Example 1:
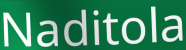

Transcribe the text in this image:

Naditola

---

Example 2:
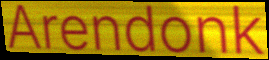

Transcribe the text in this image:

Arendonk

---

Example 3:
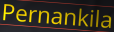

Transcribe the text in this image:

Pernankila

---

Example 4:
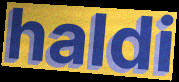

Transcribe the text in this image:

haldi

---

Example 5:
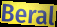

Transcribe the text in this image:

Beral